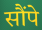
सौंपे